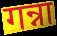
गन्ना